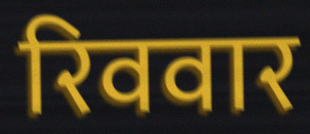
रिववार